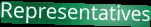
Representatives